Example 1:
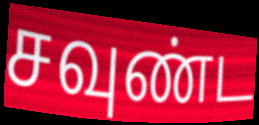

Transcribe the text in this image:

சவுண்ட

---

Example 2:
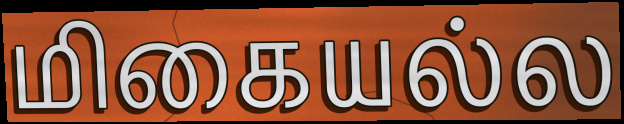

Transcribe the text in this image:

மிகையல்ல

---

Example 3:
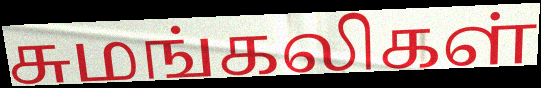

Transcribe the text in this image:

சுமங்கலிகள்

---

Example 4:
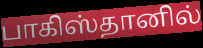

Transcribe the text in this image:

பாகிஸ்தானில்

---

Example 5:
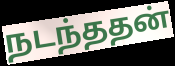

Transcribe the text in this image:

நடந்ததன்